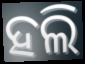
ହଲି